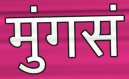
मुंगसं